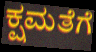
ಕ್ಷಮತೆಗೆ